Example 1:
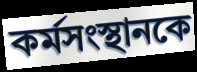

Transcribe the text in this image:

কর্মসংস্থানকে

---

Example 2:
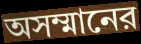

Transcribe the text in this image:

অসম্মানের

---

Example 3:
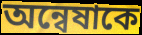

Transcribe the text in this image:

অন্বেষাকে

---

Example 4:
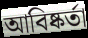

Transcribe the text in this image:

আবিষ্কর্তা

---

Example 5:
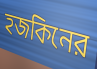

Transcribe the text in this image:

হজকিনের